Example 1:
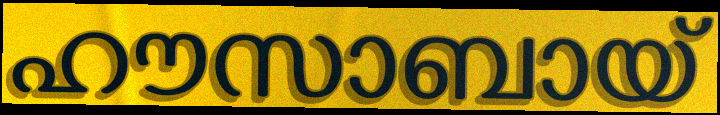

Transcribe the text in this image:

ഹൗസാബായ്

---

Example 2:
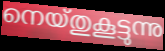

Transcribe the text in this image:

നെയ്തുകൂട്ടുന്നു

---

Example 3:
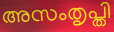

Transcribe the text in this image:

അസംതൃപ്തി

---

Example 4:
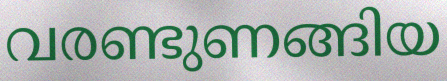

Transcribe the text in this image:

വരണ്ടുണങ്ങിയ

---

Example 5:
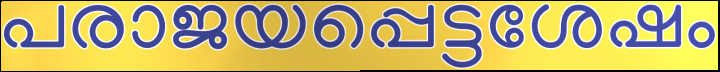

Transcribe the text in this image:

പരാജയപ്പെട്ടശേഷം